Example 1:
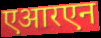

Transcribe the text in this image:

एआरएन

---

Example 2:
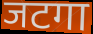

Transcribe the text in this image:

जटगा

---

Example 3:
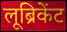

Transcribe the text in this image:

लूब्रिकेंट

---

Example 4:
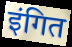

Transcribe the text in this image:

इंगित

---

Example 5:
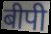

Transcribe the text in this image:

बीपी